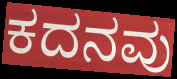
ಕದನವು